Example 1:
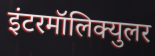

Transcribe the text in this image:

इंटरमॉलिक्युलर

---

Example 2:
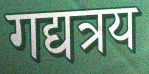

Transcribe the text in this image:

गद्यत्रय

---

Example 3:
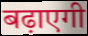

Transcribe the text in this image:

बढ़ाएगी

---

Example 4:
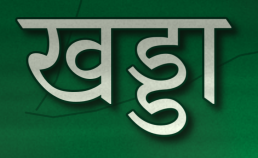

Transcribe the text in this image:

खड्डा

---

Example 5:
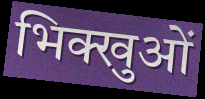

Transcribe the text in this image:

भिक्खुओं